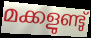
മക്കളുണ്ടു്